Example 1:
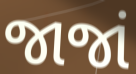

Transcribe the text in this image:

જાજાં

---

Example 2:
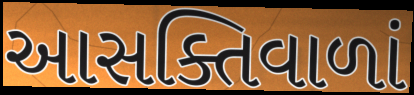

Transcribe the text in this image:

આસક્તિવાળાં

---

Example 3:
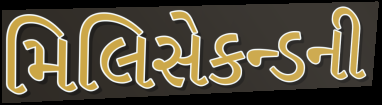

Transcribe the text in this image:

મિલિસેકન્ડની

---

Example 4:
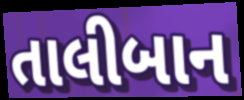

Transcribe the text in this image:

તાલીબાન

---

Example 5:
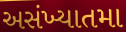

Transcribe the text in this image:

અસંખ્યાતમા